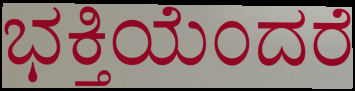
ಭಕ್ತಿಯೆಂದರೆ